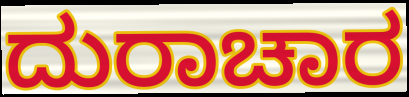
ದುರಾಚಾರ